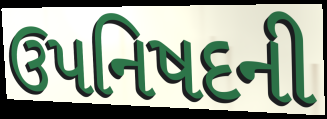
ઉપનિષદની